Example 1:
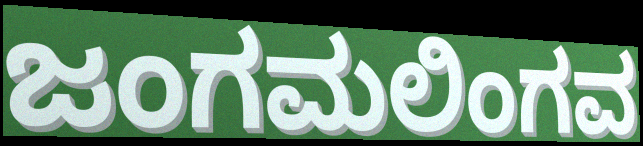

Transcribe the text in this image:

ಜಂಗಮಲಿಂಗವ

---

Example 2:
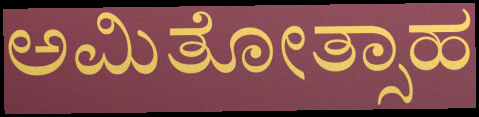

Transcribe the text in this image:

ಅಮಿತೋತ್ಸಾಹ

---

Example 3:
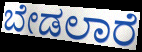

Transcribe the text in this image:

ಬೇಡಲಾರೆ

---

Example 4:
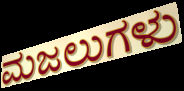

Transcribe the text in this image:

ಮಜಲುಗಳು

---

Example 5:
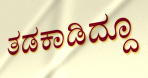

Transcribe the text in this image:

ತಡಕಾಡಿದ್ದೂ